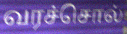
வரச்சொல்